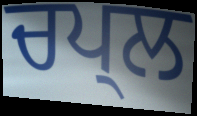
ਚਪ੍ਲ